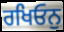
ਰਖਿਓਨੁ